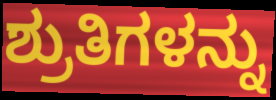
ಶ್ರುತಿಗಳನ್ನು